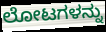
ಲೋಟಗಳನ್ನು